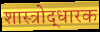
शास्त्रोद्धारक